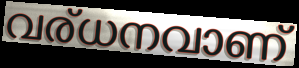
വര്ധനവാണ്